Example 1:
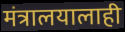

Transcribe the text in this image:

मंत्रालयालाही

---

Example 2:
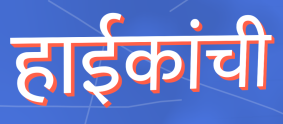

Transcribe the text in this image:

हाईकांची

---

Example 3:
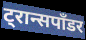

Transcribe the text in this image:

ट्रान्सपाँडर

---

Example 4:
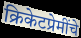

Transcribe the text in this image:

क्रिकेटप्रेमींचे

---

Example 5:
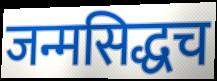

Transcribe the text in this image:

जन्मसिद्धच